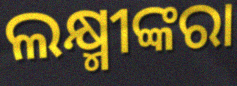
ଲକ୍ଷ୍ମୀଙ୍କରା